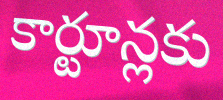
కార్టూన్లకు